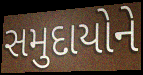
સમુદાયોને